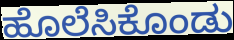
ಹೊಲೆಸಿಕೊಂಡು